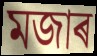
মজাৰ